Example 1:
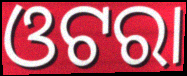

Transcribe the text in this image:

ଓଟରା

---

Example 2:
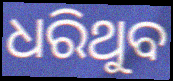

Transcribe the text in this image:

ଧରିଥୁବ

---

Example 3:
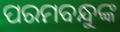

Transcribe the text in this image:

ପରମବନ୍ଧୁଙ୍କ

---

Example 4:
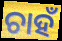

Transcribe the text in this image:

ଚାହଁ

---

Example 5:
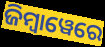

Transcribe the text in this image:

ଜିମ୍ୱାୱେରେ